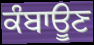
ਕੰਬਾਊਣ